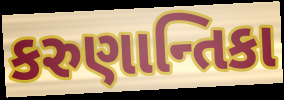
કરુણાન્તિકા